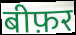
बीफ़र